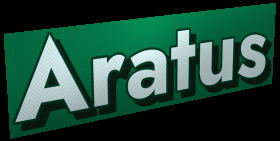
Aratus